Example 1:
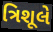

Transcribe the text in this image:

ત્રિશૂલે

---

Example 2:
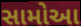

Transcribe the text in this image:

સામોઆ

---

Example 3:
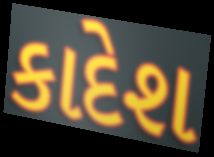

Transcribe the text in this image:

કાદેશ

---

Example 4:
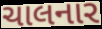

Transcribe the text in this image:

ચાલનાર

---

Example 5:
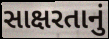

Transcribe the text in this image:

સાક્ષરતાનું